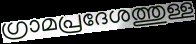
ഗ്രാമപ്രദേശത്തുള്ള